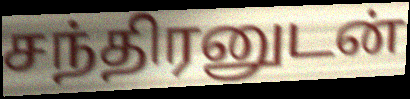
சந்திரனுடன்